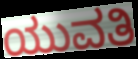
ಯುವತಿ